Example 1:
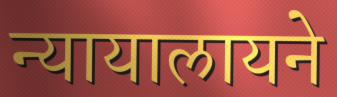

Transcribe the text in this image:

न्यायालायने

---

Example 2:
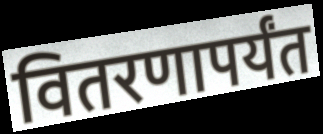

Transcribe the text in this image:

वितरणापर्यंत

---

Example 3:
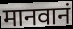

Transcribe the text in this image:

मानवानं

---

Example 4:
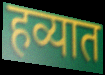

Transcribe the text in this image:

हव्यात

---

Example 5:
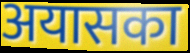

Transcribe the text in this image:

अयासका